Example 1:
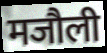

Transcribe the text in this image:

मजौली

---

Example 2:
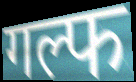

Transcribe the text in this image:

गल्फ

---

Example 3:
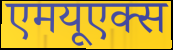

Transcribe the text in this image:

एमयूएक्स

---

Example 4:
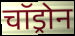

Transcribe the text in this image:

चॉड्रोन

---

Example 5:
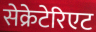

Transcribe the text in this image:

सेक्रेटेरिएट